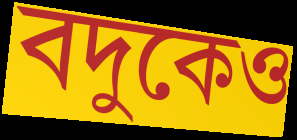
বদুকেও